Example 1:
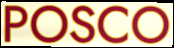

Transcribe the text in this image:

POSCO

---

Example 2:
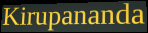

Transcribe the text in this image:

Kirupananda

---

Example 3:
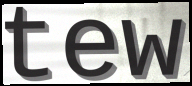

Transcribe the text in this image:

tew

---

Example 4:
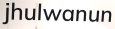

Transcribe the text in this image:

jhulwanun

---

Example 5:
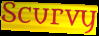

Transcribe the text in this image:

Scurvy